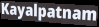
Kayalpatnam